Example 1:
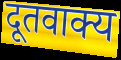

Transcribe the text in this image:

दूतवाक्य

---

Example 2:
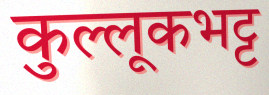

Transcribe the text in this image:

कुल्लूकभट्ट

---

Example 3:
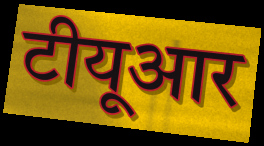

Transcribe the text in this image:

टीयूआर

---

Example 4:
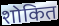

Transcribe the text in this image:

शोकित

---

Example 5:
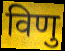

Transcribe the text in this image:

विणु